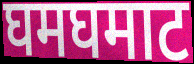
घमघमाट